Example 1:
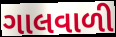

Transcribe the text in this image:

ગાલવાળી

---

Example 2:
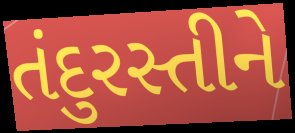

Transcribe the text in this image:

તંદુરસ્તીને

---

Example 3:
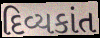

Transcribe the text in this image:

દિવ્યકાંત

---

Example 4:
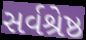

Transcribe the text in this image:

સર્વશ્રેષ્ઠ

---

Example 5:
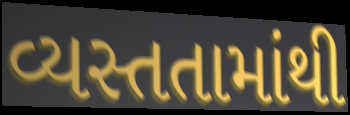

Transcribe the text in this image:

વ્યસ્તતામાંથી